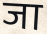
जा